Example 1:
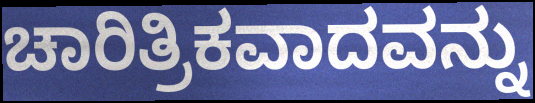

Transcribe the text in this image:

ಚಾರಿತ್ರಿಕವಾದವನ್ನು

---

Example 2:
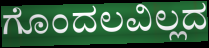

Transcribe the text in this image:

ಗೊಂದಲವಿಲ್ಲದ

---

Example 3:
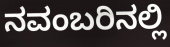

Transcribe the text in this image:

ನವಂಬರಿನಲ್ಲಿ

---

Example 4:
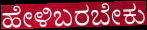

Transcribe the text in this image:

ಹೇಳಿಬರಬೇಕು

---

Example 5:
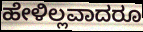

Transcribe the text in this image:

ಹೇಳಿಲ್ಲವಾದರೂ